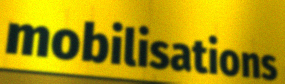
mobilisations